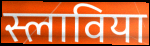
स्लाविया